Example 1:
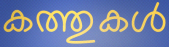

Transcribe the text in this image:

കത്തുകൾ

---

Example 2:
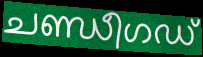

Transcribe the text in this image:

ചണ്ഡീഗഡ്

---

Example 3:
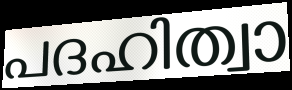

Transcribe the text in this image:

പദഹിത്വാ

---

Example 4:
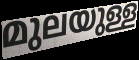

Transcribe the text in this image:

മുലയുള്ള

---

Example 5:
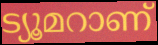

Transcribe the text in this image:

ട്യൂമറാണ്